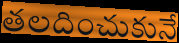
తలదించుకునే